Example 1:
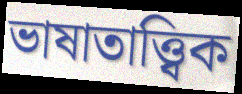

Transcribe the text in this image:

ভাষাতাত্ত্বিক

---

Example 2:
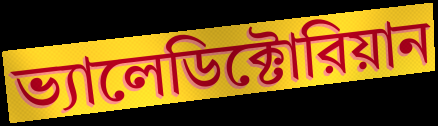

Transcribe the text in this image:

ভ্যালেডিক্টোরিয়ান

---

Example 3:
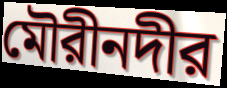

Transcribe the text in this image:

মৌরীনদীর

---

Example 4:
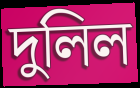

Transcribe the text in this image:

দুলিল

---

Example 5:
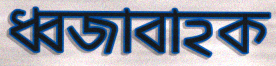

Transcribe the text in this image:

ধ্বজাবাহক